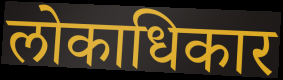
लोकाधिकार